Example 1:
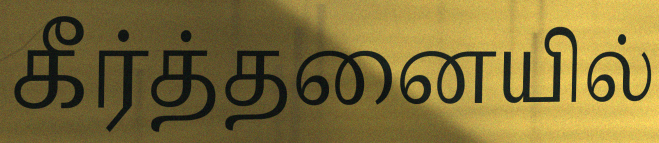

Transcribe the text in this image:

கீர்த்தனையில்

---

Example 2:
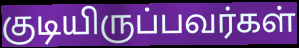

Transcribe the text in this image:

குடியிருப்பவர்கள்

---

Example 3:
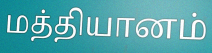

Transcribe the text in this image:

மத்தியானம்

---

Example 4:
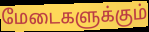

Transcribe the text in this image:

மேடைகளுக்கும்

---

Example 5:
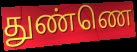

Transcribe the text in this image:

துண்ணெ